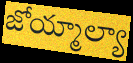
జోయ్మాల్యా